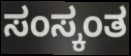
ಸಂಸ್ಕಂತ